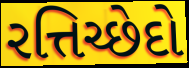
રત્તિચ્છેદો